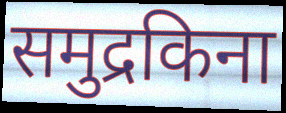
समुद्रकिना